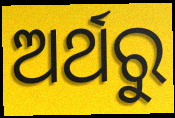
ଅର୍ଥରୁ